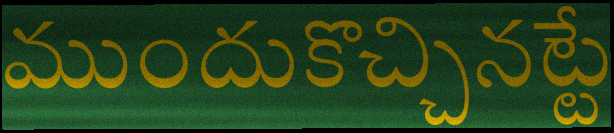
ముందుకొచ్చినట్టే